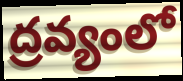
ద్రవ్యంలో